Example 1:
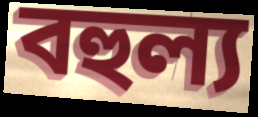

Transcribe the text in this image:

বহুল্য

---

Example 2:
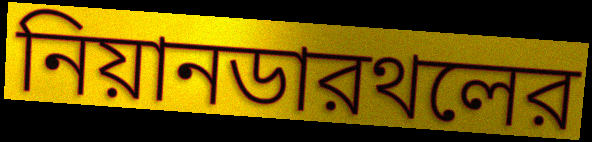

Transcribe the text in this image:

নিয়ানডারথলের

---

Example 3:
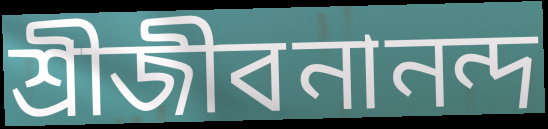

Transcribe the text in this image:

শ্রীজীবনানন্দ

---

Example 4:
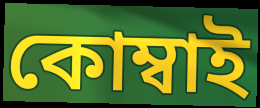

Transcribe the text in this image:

কোম্বাই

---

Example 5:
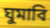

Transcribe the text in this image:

ঘুমাবি